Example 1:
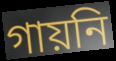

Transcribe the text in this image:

গায়নি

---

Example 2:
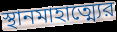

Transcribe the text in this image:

স্থানমাহাত্ম্যের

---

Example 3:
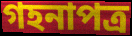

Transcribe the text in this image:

গহনাপত্র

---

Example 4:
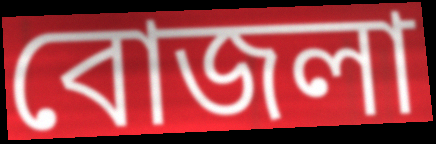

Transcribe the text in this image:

বোজলা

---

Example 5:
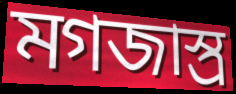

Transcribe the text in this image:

মগজাস্ত্র